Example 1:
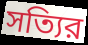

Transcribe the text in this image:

সত্যির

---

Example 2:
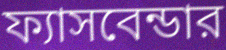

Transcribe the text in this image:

ফ্যাসবেন্ডার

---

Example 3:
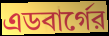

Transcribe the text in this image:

এডবার্গের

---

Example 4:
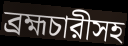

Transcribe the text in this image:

ব্রহ্মচারীসহ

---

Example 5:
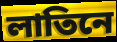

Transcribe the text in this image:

লাতিনে